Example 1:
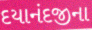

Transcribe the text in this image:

દયાનંદજીના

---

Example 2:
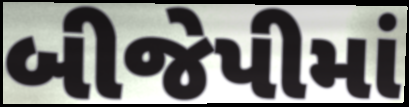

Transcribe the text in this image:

બીજેપીમાં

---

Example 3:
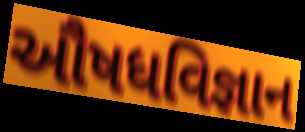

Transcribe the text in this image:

ઔષધવિજ્ઞાન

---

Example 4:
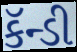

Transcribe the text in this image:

કૅન્ડી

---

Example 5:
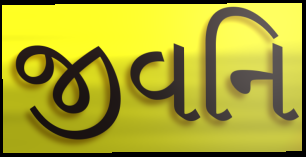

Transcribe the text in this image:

જીવનિ